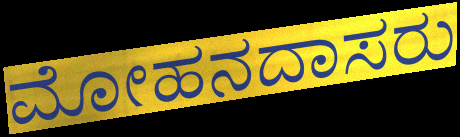
ಮೋಹನದಾಸರು